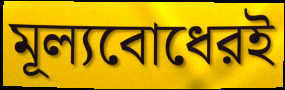
মূল্যবোধেরই